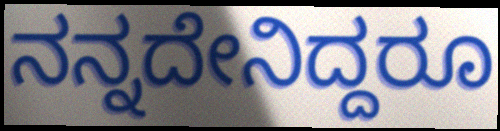
ನನ್ನದೇನಿದ್ದರೂ